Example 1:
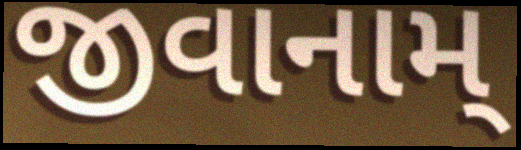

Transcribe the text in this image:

જીવાનામ્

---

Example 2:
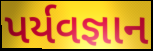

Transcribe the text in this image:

પર્યવજ્ઞાન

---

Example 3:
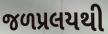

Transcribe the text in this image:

જળપ્રલયથી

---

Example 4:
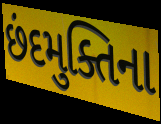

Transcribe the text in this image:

છંદમુક્તિના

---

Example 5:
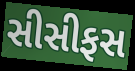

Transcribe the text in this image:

સીસીફસ